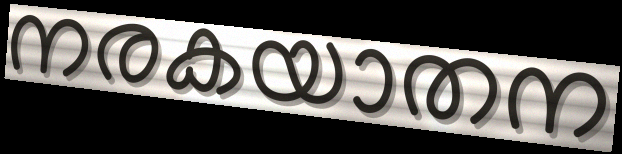
നരകയാതന